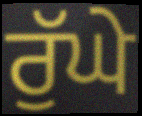
ਰੁੱਘੇ